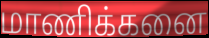
மாணிக்கனை